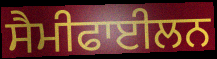
ਸੈਮੀਫਾਈਲਨ